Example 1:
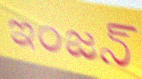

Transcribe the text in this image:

ఇంజన్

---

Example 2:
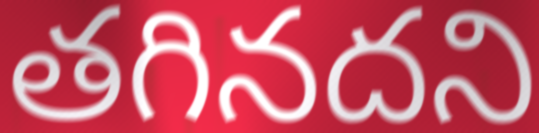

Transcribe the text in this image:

తగినదని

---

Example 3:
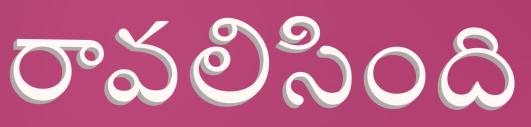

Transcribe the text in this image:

రావలిసింది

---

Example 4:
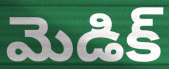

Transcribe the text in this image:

మెడిక్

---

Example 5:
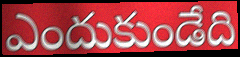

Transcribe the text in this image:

ఎందుకుండేది